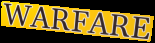
WARFARE